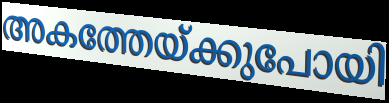
അകത്തേയ്ക്കുപോയി